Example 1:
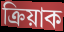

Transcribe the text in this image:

ক্ৰিয়াক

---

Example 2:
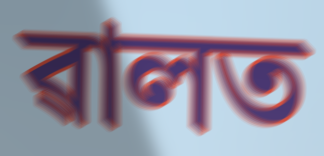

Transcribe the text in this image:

ৱালত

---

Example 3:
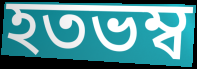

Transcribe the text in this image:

হতভম্ব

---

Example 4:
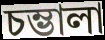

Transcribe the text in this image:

চম্ভালা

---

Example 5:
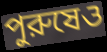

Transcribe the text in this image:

পুৰুষেও